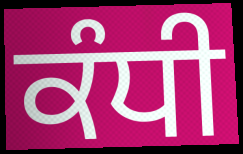
ਕੰਧੀ